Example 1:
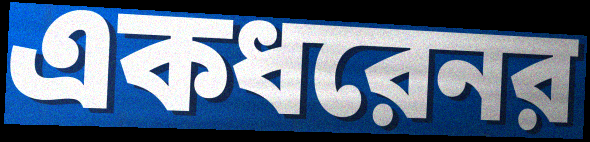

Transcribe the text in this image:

একধরেনর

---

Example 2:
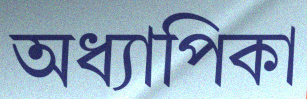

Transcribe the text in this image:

অধ্যাপিকা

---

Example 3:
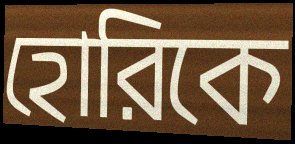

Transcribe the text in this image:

হোরিকে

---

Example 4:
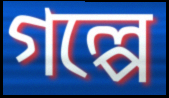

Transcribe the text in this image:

গল্পে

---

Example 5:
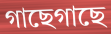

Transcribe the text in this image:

গাছেগাছে